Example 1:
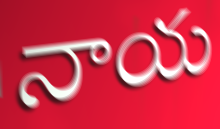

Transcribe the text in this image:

నాయ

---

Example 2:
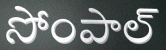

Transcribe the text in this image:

సోంపాల్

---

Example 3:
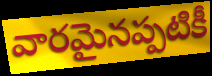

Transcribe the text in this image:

వారమైనప్పటికీ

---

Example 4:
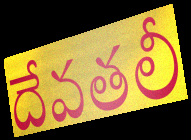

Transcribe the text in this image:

దేవతలీ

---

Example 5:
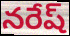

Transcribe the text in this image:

నరేష్